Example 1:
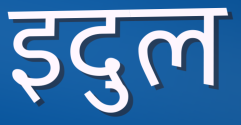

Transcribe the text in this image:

इदुल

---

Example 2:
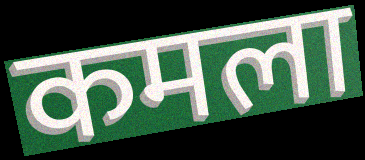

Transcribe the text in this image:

कमला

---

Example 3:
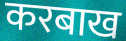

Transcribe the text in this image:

करबाख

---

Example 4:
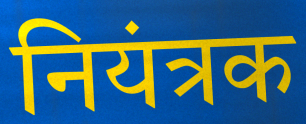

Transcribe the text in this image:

नियंत्रक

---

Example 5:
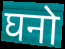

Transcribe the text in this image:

घनो